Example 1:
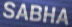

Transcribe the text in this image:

SABHA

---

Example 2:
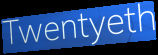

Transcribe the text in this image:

Twentyeth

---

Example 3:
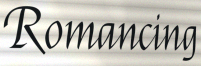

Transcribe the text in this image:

Romancing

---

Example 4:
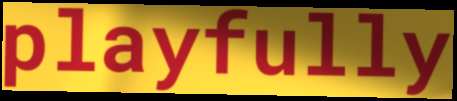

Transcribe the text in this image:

playfully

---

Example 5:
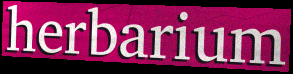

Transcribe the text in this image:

herbarium